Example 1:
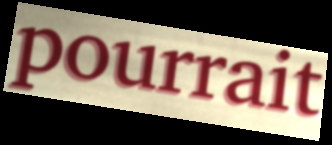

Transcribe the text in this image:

pourrait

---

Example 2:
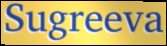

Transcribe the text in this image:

Sugreeva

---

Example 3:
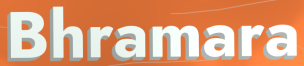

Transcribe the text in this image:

Bhramara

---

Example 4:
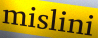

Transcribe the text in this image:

mislini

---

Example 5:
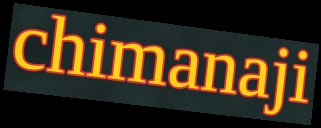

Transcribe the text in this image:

chimanaji